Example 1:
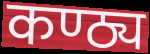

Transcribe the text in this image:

कण्ठ्य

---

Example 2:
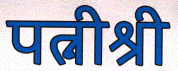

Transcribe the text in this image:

पत्नीश्री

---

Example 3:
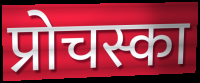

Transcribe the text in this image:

प्रोचस्का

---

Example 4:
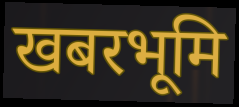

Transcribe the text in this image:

खबरभूमि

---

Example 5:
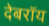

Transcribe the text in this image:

देबरॉय